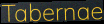
Tabernae